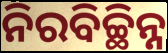
ନିରବିଚ୍ଛିନ୍ନ